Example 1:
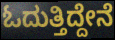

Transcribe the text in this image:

ಓದುತ್ತಿದ್ದೇನೆ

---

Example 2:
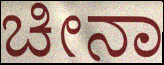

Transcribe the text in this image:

ಚೀನಾ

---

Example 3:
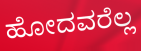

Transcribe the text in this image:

ಹೋದವರೆಲ್ಲ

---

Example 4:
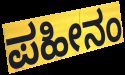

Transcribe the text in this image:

ಪಹೀನಂ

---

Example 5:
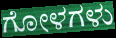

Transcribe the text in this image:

ಗೋಳಗಳು